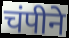
चंपीने